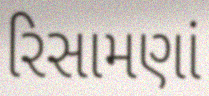
રિસામણાં